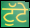
ਟੁੱਟੇ